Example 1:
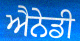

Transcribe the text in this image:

ਐਨੇਡੀ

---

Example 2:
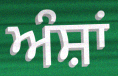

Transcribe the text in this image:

ਅੰਸ਼ਾਂ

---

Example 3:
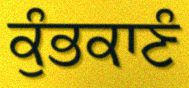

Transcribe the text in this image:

ਕੁੰਭਕਾਣੰ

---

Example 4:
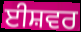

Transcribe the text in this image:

ਈਸ਼ਵਰ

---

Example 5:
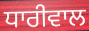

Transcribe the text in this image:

ਧਾਰੀਵਾਲ